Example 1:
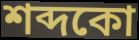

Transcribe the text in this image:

শব্দকো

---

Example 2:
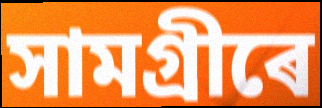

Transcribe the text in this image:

সামগ্ৰীৰে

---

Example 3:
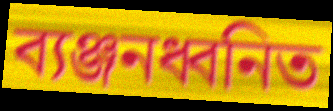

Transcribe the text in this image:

ব্যঞ্জনধ্বনিত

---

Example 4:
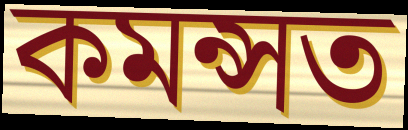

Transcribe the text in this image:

কমন্সত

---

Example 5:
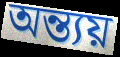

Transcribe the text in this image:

অন্ত্যয়